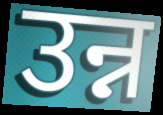
उन्न